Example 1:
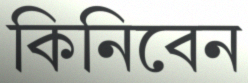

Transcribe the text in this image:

কিনিবেন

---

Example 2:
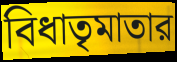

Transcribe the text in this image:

বিধাতৃমাতার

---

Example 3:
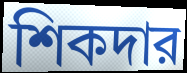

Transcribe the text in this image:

শিকদার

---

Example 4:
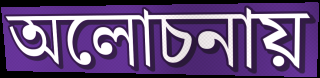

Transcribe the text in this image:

অলোচনায়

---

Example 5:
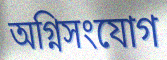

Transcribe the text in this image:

অগ্নিসংযোগ